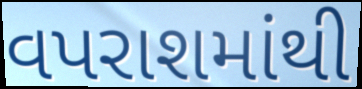
વપરાશમાંથી